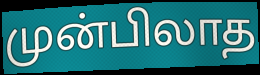
முன்பிலாத